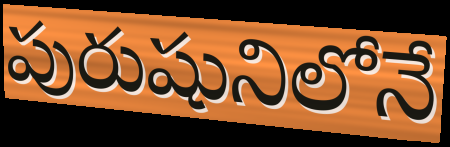
పురుషునిలోనే